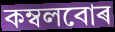
কম্বলবোৰ